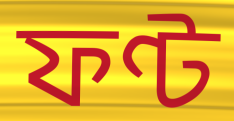
ফণ্ট